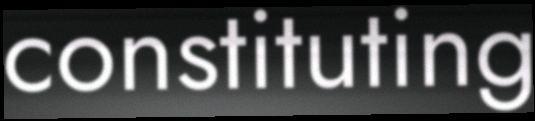
constituting